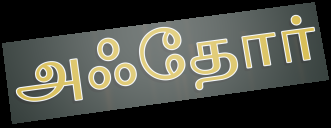
அஃதோர்